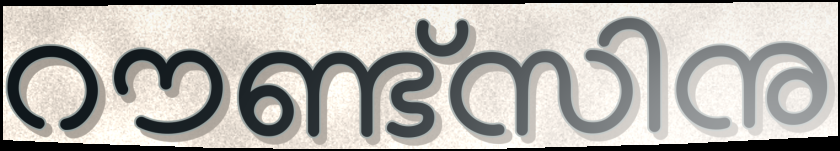
റൗണ്ട്സിനു